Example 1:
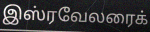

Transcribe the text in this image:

இஸ்ரவேலரைக்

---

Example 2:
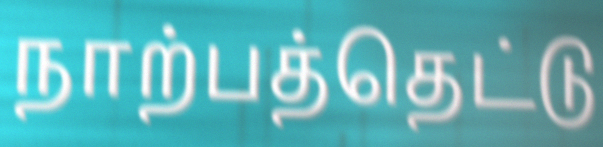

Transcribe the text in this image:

நாற்பத்தெட்டு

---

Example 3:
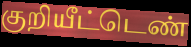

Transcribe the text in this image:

குறியீட்டெண்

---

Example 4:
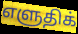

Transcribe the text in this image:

எளுதிக்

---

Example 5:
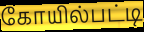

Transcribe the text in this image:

கோயில்பட்டி